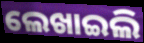
ଲେଖାଇଲି